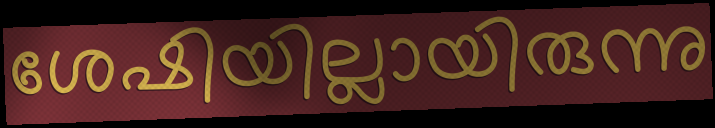
ശേഷിയില്ലായിരുന്നു